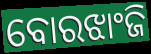
ବୋରଝାଂଜି